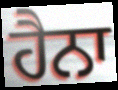
ਹੈਨਾ